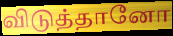
விடுத்தானோ